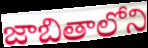
జాబితాలోని